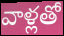
వాళ్లతో